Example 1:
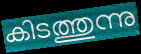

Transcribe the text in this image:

കിടത്തുന്നു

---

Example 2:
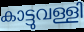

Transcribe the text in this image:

കാട്ടുവള്ളി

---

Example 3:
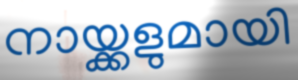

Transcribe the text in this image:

നായ്ക്കളുമായി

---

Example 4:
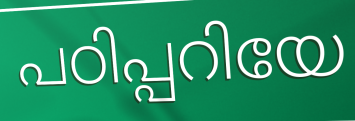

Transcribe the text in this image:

പഠിപ്പറിയേ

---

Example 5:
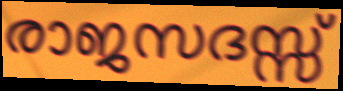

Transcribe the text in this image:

രാജസദസ്സ്